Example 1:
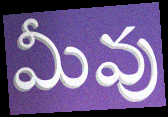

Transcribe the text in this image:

మీవు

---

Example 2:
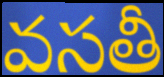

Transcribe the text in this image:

వసతీ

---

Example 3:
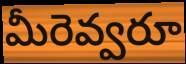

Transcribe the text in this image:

మీరెవ్వరూ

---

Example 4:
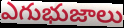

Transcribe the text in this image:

ఎగుభుజాలు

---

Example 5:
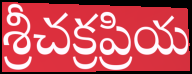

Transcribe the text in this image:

శ్రీచక్రప్రియ